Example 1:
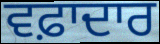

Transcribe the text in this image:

ਵਫ਼ਾਦਾਰ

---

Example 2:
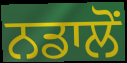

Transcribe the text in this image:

ਨਡਾਲੋਂ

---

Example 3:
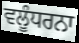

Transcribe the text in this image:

ਵਲੂੰਧਰਨਾ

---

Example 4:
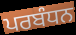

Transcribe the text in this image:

ਪਰਬੰਧਨ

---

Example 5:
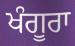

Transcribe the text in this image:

ਖੰਗੂਰਾ